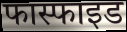
फास्फाइड